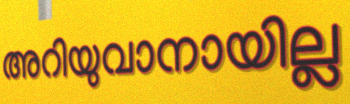
അറിയുവാനായില്ല